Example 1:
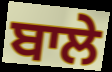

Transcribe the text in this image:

ਬਾਲੇ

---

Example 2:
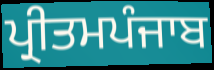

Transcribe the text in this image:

ਪ੍ਰੀਤਮਪੰਜਾਬ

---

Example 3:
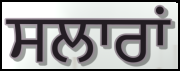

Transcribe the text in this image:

ਸਲਾਰਾਂ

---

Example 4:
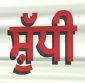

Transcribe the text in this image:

ਸ਼ੁੱਧੀ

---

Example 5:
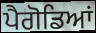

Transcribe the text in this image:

ਪੈਗੋਡਿਆਂ